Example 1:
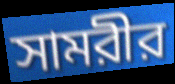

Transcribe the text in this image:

সামরীর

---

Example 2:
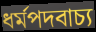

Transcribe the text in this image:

ধর্মপদবাচ্য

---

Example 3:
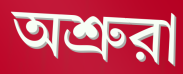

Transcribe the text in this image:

অশ্রুরা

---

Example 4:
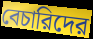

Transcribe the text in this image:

বেচারিদের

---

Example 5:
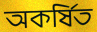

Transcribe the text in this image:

অকর্ষিত